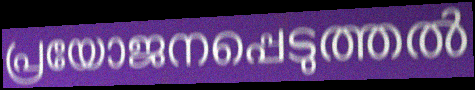
പ്രയോജനപ്പെടുത്തൽ